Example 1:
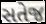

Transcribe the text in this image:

સતેજ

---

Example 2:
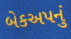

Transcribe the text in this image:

બેકઅપનું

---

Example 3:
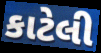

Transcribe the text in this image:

કાટેલી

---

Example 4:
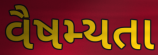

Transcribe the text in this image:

વૈષમ્યતા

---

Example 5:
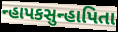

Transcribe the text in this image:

ન્હાપકસુન્હાપિતા